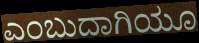
ಎಂಬುದಾಗಿಯೂ